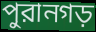
পুরানগড়